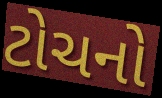
ટોચનો